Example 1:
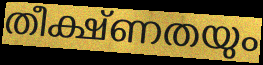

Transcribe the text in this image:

തീക്ഷ്‌ണതയും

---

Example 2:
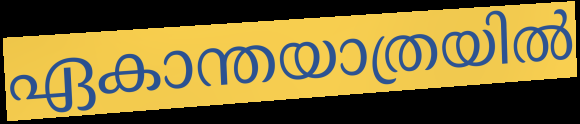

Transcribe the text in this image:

ഏകാന്തയാത്രയിൽ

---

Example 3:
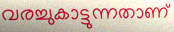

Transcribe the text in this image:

വരച്ചുകാട്ടുന്നതാണ്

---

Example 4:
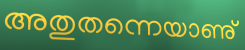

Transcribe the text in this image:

അതുതന്നെയാണു്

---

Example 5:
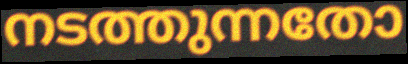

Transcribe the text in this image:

നടത്തുന്നതോ